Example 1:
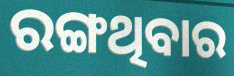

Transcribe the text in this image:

ରଙ୍ଗଥିବାର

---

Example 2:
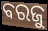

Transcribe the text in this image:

ବରଜୁ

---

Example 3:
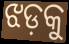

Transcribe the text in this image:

ଝଡ଼କୁ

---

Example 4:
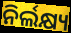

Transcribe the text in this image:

ନିର୍ଲକ୍ଷ୍ୟ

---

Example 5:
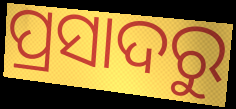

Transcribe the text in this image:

ପ୍ରସାଦରୁ